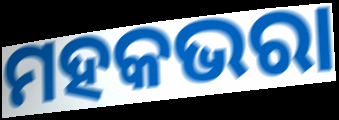
ମହକଭରା